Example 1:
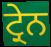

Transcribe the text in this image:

ਟ੍ਰੇਨ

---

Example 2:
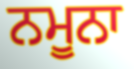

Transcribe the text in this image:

ਨਮੂਨਾ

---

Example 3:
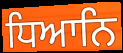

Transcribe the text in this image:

ਧਿਆਨਿ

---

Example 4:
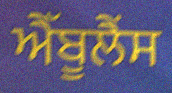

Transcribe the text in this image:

ਐੱਬੂਲੈਂਸ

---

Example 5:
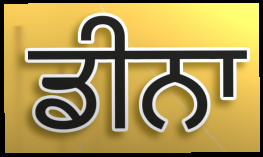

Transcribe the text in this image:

ਡੀਨਾ